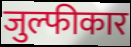
जुल्फीकार